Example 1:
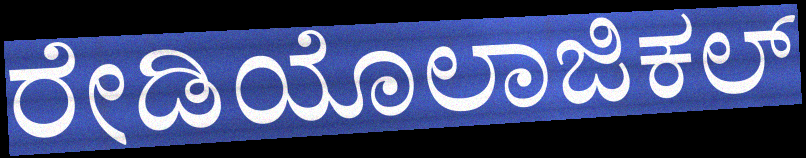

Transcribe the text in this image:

ರೇಡಿಯೊಲಾಜಿಕಲ್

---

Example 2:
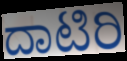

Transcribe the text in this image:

ದಾಟಿರಿ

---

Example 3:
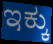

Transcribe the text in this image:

ಇಕ್ಕು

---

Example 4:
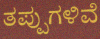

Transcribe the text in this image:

ತಪ್ಪುಗಳಿವೆ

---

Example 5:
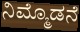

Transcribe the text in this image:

ನಿಮ್ಮೊಡನೆ